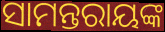
ସାମନ୍ତରାୟଙ୍କ